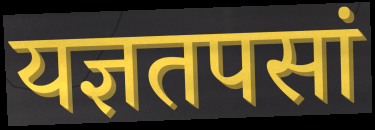
यज्ञतपसां